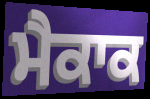
ਮੈਕਾਕ